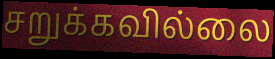
சறுக்கவில்லை